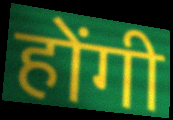
होंगी